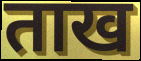
ताख